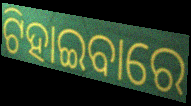
ଟିହାଇବାରେ